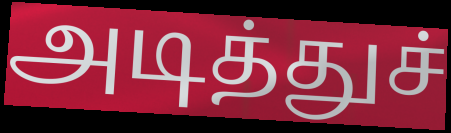
அடித்துச்